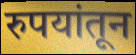
रुपयांतून